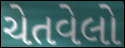
ચેતવેલો